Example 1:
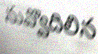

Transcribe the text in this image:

నువ్వొదిలిన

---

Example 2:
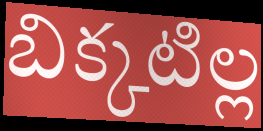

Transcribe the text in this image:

బిక్కటిల్ల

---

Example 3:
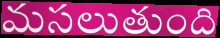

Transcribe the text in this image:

మసలుతుంది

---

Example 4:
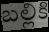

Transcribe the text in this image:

బల్లికి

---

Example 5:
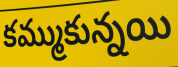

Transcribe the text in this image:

కమ్ముకున్నయి